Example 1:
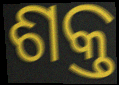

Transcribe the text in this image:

ଶକ୍ତ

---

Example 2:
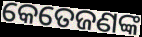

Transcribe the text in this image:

କେତେଜଣଙ୍କ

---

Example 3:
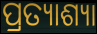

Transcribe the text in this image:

ପ୍ରତ୍ୟାଶ୍ୟା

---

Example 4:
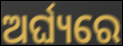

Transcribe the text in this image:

ଅର୍ଘ୍ୟରେ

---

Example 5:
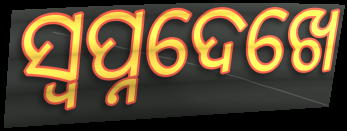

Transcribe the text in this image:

ସ୍ୱପ୍ନଦେଖେ